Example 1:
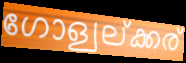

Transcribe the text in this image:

ഗോള്വല്ക്കര്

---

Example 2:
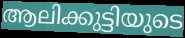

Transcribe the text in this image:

ആലിക്കുട്ടിയുടെ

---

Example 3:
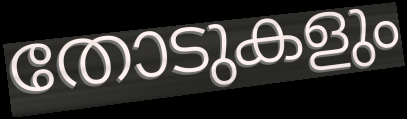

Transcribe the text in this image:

തോടുകളും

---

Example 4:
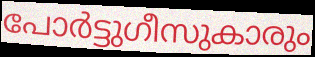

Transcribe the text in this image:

പോർട്ടുഗീസുകാരും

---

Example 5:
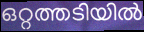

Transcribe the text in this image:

ഒറ്റത്തടിയിൽ